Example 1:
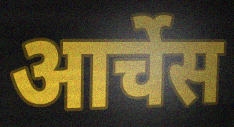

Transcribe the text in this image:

आर्चेस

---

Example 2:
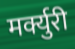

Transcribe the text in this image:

मर्क्युरी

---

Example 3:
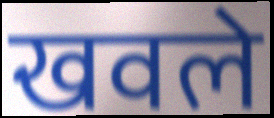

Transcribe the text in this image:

खवले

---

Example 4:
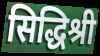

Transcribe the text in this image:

सिद्धिश्री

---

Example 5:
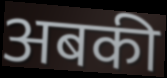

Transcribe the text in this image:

अबकी